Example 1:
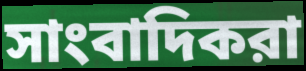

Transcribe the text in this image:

সাংবাদিকরা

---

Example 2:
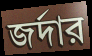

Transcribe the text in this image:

জর্দার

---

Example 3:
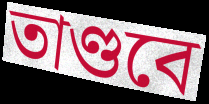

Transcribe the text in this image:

তাণ্ডবে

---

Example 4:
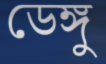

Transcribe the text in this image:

ডেঙ্গু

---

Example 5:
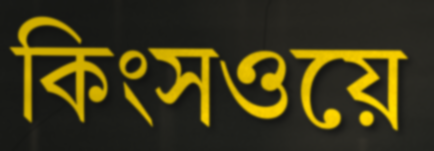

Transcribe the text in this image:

কিংসওয়ে